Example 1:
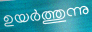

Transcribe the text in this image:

ഉയർത്തുന്നു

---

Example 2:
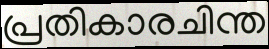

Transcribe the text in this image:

പ്രതികാരചിന്ത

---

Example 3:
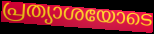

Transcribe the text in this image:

പ്രത്യാശയോടെ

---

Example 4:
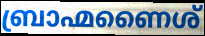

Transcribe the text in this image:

ബ്രാഹ്മണൈശ്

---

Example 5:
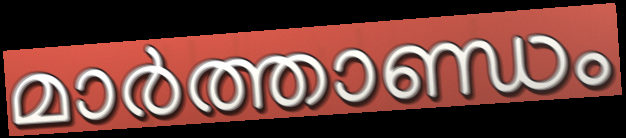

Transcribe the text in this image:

മാർത്താണ്ഡം